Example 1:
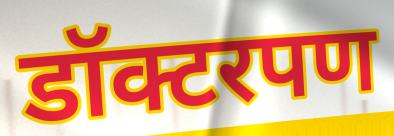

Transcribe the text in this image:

डॉक्टरपण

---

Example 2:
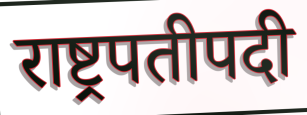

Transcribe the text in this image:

राष्ट्रपतीपदी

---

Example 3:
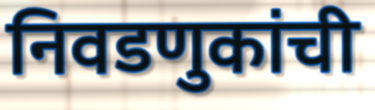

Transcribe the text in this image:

निवडणुकांची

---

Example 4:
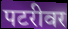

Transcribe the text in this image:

पटरीवर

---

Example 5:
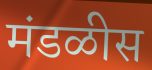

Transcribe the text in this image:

मंडळीस